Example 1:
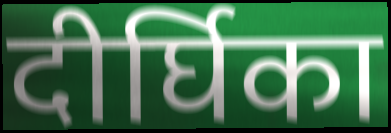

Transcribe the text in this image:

दीर्घिका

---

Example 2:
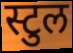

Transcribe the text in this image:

स्टुल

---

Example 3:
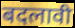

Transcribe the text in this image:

बदलावी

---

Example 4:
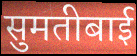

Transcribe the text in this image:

सुमतीबाई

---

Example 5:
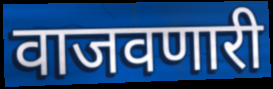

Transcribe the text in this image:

वाजवणारी